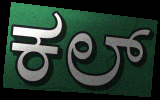
ಕಲ್